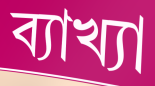
ব্যাখ্যা